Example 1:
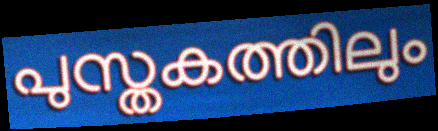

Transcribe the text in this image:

പുസ്തകത്തിലും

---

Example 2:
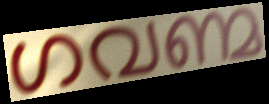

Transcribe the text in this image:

ഗവണ്മ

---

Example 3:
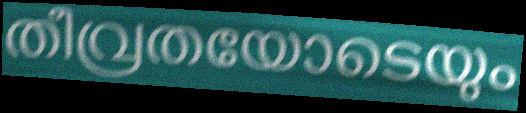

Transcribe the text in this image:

തീവ്രതയോടെയും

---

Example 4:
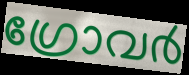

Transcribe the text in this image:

ഗ്രോവർ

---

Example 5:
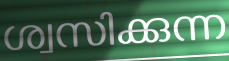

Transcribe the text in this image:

ശ്വസിക്കുന്ന